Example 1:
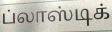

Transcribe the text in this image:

ப்லாஸ்டிக்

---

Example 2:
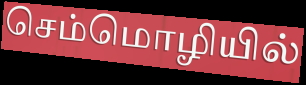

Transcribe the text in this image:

செம்மொழியில்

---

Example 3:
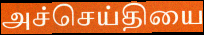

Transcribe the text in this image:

அச்செய்தியை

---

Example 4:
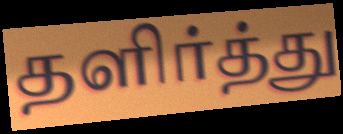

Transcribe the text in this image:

தளிர்த்து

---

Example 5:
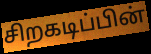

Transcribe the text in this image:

சிறகடிப்பின்